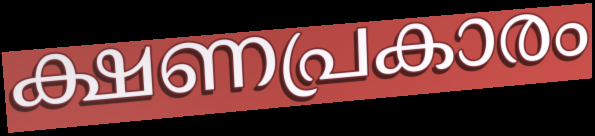
ക്ഷണപ്രകാരം